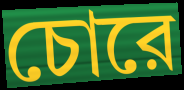
চোরে